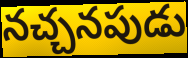
నచ్చనపుడు